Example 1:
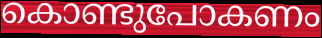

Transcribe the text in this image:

കൊണ്ടുപോകണം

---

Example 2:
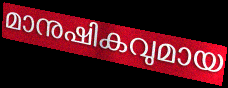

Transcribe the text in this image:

മാനുഷികവുമായ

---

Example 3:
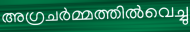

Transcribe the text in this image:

അഗ്രചർമ്മത്തിൽവെച്ചു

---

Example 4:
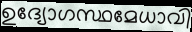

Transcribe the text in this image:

ഉദ്യോഗസ്ഥമേധാവി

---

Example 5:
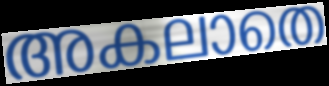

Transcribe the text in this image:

അകലാതെ